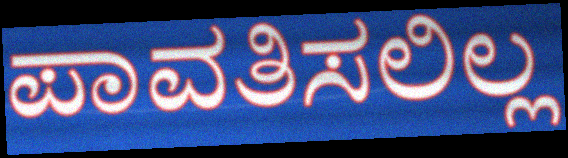
ಪಾವತಿಸಲಿಲ್ಲ